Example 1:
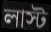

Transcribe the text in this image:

লাস্ট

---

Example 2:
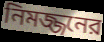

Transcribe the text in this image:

নিমজ্জনের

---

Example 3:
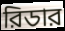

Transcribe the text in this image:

রিডার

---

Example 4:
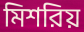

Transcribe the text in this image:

মিশরিয়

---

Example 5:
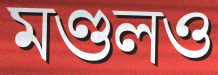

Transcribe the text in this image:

মণ্ডলও